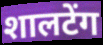
शालटेंग